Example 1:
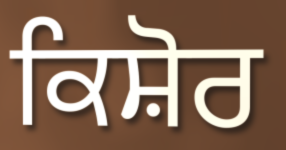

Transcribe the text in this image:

ਕਿਸ਼ੋਰ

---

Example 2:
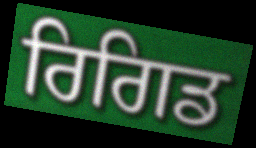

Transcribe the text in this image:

ਰਿਗਿਡ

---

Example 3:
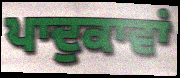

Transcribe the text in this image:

ਪਾਦੁਕਾਵਾਂ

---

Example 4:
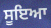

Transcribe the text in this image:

ਸੂਇਆ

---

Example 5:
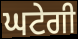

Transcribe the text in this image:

ਘਟੇਗੀ